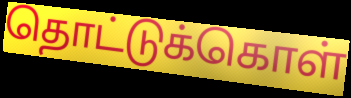
தொட்டுக்கொள்